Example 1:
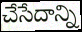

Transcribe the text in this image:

చేసేదాన్ని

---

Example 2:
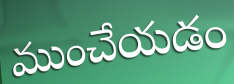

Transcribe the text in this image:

ముంచేయడం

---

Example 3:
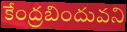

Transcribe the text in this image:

కేంద్రబిందువని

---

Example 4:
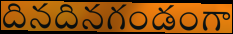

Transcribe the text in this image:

దినదినగండంగా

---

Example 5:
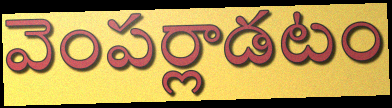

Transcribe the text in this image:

వెంపర్లాడటం